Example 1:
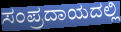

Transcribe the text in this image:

ಸಂಪ್ರದಾಯದಲ್ಲಿ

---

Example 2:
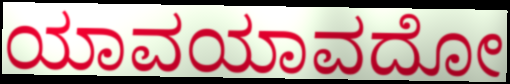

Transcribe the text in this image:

ಯಾವಯಾವದೋ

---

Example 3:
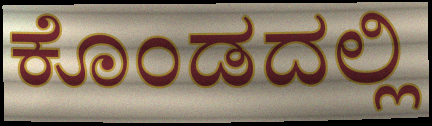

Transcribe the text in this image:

ಕೊಂಡದಲ್ಲಿ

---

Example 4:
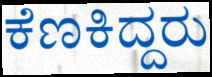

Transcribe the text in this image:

ಕೆಣಕಿದ್ದರು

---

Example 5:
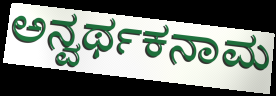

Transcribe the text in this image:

ಅನ್ವರ್ಥಕನಾಮ